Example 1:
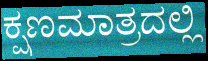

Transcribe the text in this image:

ಕ್ಷಣಮಾತ್ರದಲ್ಲಿ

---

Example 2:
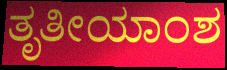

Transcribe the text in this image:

ತೃತೀಯಾಂಶ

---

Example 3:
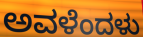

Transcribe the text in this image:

ಅವಳೆಂದಳು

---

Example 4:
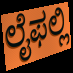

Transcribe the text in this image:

ಲೈಫಲ್ಲಿ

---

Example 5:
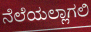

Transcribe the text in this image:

ನೆಲೆಯಲ್ಲಾಗಲಿ